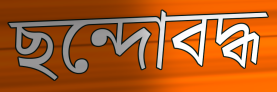
ছন্দোবদ্ধ